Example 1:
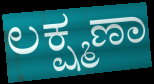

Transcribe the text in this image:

ಲಕ್ಷ್ಮಣಾ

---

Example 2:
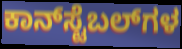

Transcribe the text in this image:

ಕಾನ್‌ಸ್ಟೆಬಲ್‌ಗಳ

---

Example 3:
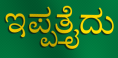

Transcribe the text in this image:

ಇಪ್ಪತ್ತೈದು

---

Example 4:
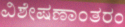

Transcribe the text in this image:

ವಿಶೇಷಣಾಂತರಂ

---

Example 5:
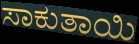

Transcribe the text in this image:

ಸಾಕುತಾಯಿ